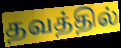
தவத்தில்